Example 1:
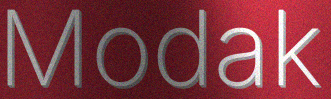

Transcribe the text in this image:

Modak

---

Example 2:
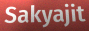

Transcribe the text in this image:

Sakyajit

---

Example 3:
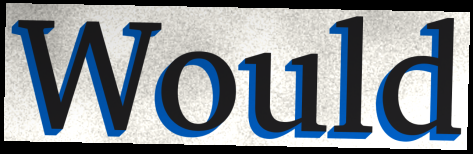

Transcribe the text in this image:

Would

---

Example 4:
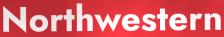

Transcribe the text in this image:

Northwestern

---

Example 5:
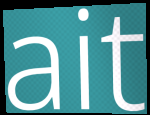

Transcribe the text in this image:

ait